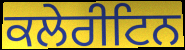
ਕਲੇਰੀਟਿਨ